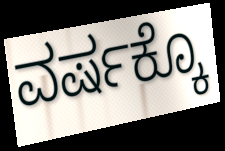
ವರ್ಷಕ್ಕೊ